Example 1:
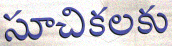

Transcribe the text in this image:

సూచికలకు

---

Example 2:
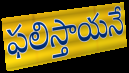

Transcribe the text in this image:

ఫలిస్తాయనే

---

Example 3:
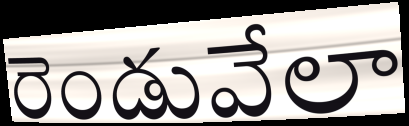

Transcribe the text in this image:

రెండువేలా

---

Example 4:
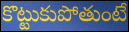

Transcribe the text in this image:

కొట్టుకుపోతుంటే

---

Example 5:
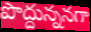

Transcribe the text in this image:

పొద్దున్ననగా